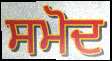
ਸਮੋਦ